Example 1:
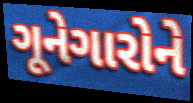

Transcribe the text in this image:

ગૂનેગારોને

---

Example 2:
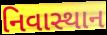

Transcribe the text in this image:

નિવાસ્થાન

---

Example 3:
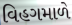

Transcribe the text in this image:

વિહગમાળે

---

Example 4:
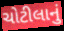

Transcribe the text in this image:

ચોટીલાનું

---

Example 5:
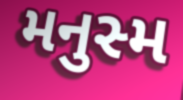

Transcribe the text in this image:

મનુસ્મ